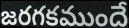
జరగకముందే